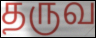
தருவ